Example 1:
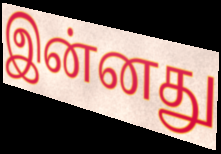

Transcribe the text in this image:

இன்னது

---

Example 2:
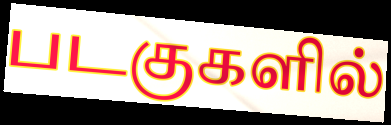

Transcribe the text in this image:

படகுகளில்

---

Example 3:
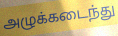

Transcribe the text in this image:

அழுக்கடைந்து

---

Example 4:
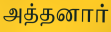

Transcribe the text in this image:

அத்தனார்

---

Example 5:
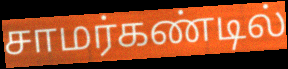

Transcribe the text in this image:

சாமர்கண்டில்